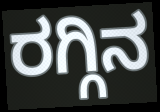
ರಗ್ಗಿನ